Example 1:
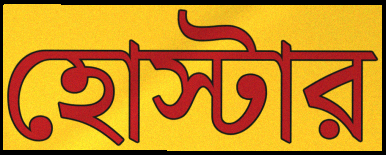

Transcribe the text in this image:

হোস্টার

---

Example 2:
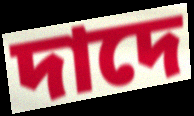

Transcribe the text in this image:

দাদে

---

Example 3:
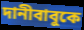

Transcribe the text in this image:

দানীবাবুকে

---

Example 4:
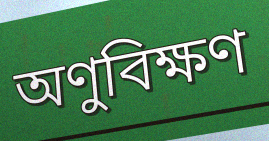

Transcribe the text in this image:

অণুবিক্ষণ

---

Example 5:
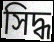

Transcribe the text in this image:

সিদ্ধ